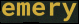
emery